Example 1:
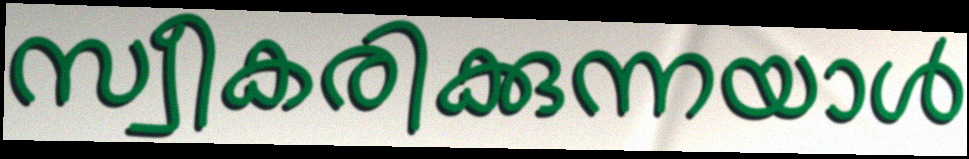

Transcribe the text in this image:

സ്വീകരിക്കുന്നയാൾ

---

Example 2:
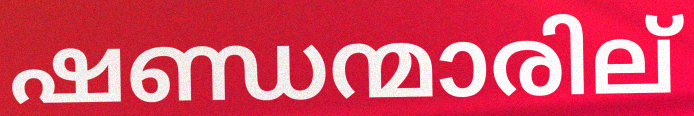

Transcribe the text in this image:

ഷണ്ഡന്മാരില്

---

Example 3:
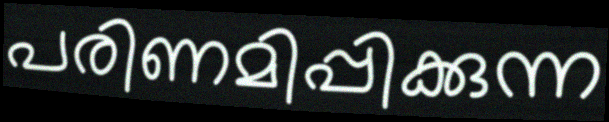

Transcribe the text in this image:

പരിണമിപ്പിക്കുന്ന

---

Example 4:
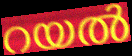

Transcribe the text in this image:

റയൽ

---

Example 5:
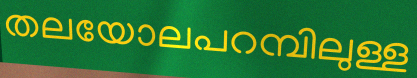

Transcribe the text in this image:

തലയോലപറമ്പിലുള്ള